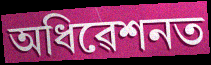
অধিৱেশনত